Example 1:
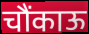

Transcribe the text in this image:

चौंकाऊ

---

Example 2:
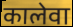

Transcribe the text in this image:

कालेवा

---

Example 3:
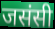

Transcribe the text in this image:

जसंसी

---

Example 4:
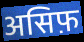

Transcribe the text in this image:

असिफ़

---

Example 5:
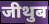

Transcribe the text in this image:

जीथुब